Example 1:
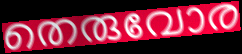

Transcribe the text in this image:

തെരുവോര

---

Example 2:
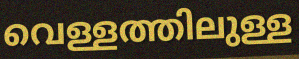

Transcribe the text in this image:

വെള്ളത്തിലുള്ള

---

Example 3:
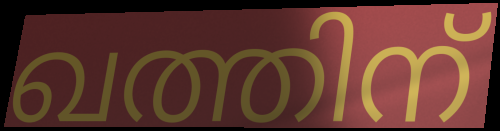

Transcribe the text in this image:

ഖത്തിന്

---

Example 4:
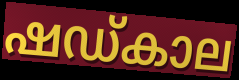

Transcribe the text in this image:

ഷഡ്കാല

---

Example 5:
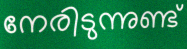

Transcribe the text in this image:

നേരിടുന്നുണ്ട്